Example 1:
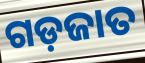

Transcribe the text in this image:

ଗଡ଼ଜାତ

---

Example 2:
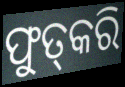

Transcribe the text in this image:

ଫୁତ୍‌କରି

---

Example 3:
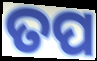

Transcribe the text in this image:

ତପ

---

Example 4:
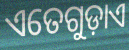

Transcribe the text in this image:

ଏତେଗୁଡ଼ାଏ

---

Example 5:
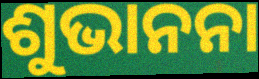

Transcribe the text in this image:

ଶୁଭାନନା